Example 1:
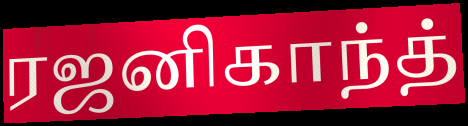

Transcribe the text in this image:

ரஜனிகாந்த்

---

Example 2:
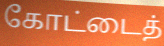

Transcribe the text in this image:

கோட்டைத்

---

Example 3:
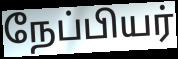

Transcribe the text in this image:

நேப்பியர்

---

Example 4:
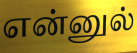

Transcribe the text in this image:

என்னுல்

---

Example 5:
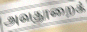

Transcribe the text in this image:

அவதூறைக்